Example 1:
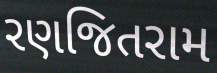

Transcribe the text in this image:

રણજિતરામ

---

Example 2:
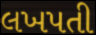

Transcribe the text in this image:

લખપતી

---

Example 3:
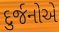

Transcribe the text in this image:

દુર્જનોએ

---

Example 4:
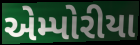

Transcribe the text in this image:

એમ્પોરીયા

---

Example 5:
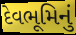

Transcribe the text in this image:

દેવભૂમિનું